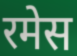
रमेस